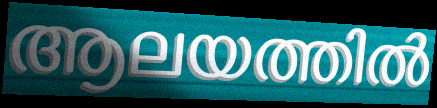
ആലയത്തിൽ